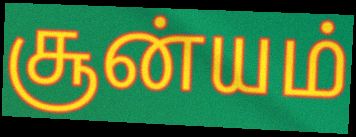
சூன்யம்